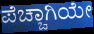
ಪೆಚ್ಚಾಗಿಯೇ